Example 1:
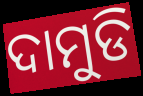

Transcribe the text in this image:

ଦାମୁଡି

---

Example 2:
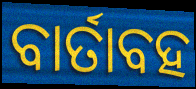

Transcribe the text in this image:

ବାର୍ତାବହ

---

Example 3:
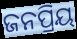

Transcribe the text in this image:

ଜନପ୍ରିୟ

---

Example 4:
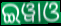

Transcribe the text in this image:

ଇୱାଓ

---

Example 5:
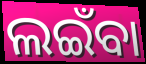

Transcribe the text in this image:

ଲଇଁବା